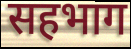
सहभाग